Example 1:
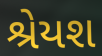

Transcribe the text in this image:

શ્રેયશ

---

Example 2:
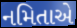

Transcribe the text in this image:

નમિતાએ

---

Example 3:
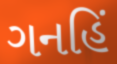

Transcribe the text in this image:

ગનહિં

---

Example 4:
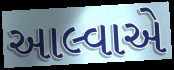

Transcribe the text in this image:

આલ્વાએ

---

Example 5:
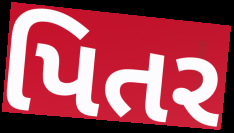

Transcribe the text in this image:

પિતર